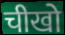
चीखो